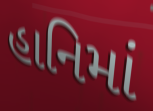
હાનિમાં